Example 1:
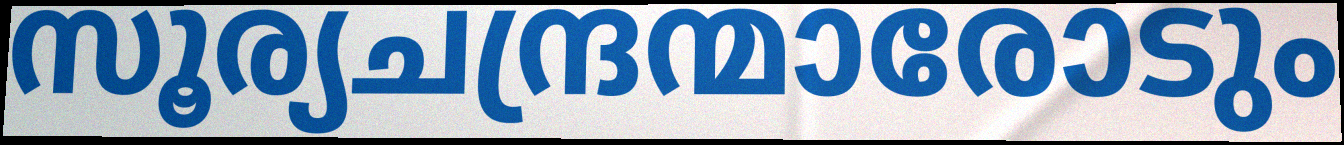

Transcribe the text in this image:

സൂര്യചന്ദ്രന്മാരോടും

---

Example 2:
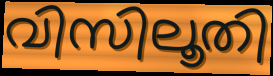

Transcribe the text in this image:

വിസിലൂതി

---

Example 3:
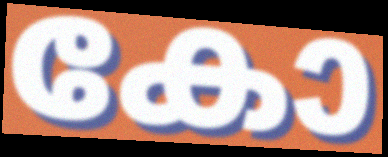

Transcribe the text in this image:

കോ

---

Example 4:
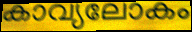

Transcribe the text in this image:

കാവ്യലോകം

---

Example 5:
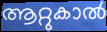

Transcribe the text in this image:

ആറ്റുകാൽ